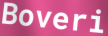
Boveri